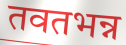
तवतभन्न